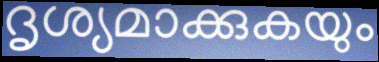
ദൃശ്യമാക്കുകയും